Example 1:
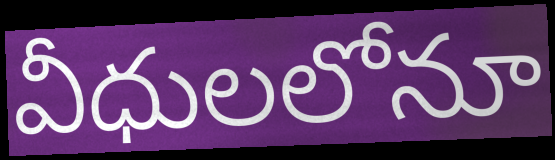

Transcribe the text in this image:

వీధులలోనూ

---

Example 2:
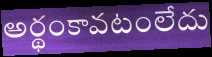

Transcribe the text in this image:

అర్థంకావటంలేదు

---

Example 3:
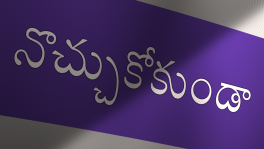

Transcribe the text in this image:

నొచ్చుకోకుండా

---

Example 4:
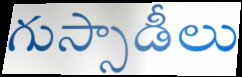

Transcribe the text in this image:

గుస్సాడీలు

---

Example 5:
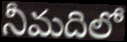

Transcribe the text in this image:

నీమదిలో